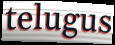
telugus